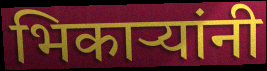
भिकाऱ्यांनी